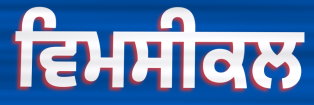
ਵਿਮਸੀਕਲ